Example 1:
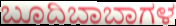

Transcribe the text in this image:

ಬೂದಿಬಾಬಾಗಳ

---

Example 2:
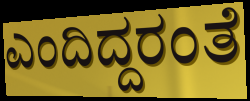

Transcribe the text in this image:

ಎಂದಿದ್ದರಂತೆ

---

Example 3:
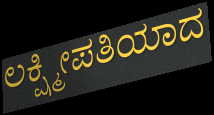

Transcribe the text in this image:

ಲಕ್ಷ್ಮೀಪತಿಯಾದ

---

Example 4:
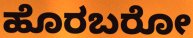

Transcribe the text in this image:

ಹೊರಬರೋ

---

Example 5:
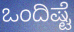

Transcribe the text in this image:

ಒಂದಿಷ್ಟೆ